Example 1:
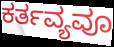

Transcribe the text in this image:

ಕರ್ತವ್ಯವೂ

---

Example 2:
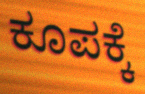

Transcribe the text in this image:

ಕೂಪಕ್ಕೆ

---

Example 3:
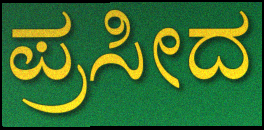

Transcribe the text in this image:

ಪ್ರಸೀದ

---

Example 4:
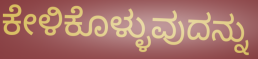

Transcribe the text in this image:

ಕೇಳಿಕೊಳ್ಳುವುದನ್ನು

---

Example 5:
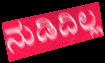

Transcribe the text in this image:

ನುಡಿದಿಲ್ಲ